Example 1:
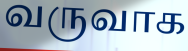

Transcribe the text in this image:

வருவாக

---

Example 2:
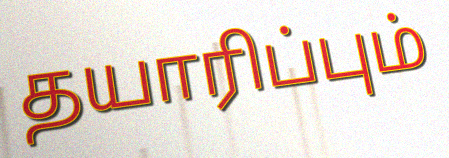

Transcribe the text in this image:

தயாரிப்பும்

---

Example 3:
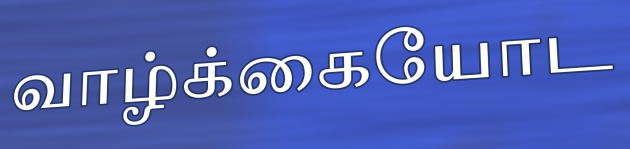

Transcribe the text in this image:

வாழ்க்கையோட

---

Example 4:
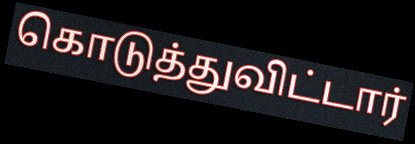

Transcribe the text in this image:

கொடுத்துவிட்டார்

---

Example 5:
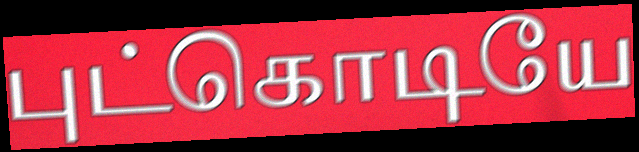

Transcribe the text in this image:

புட்கொடியே